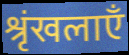
श्रृंखलाएँ